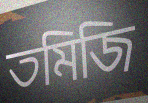
তমিজি